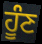
ਹੂੰਣ